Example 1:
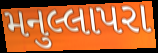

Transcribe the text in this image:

મનુલ્લાપરા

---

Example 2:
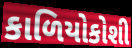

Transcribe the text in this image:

કાળિયોકોશી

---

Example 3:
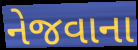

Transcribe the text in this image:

નેજવાના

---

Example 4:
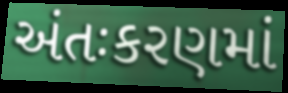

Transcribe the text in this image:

અંતઃકરણમાં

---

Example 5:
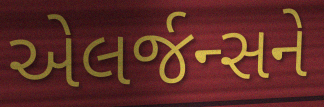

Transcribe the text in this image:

એલર્જન્સને